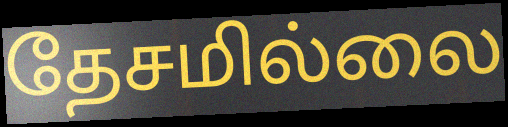
தேசமில்லை